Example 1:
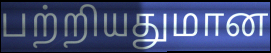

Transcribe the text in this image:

பற்றியதுமான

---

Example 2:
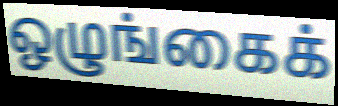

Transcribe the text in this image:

ஒழுங்கைக்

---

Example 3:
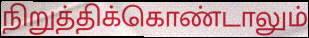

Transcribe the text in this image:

நிறுத்திக்கொண்டாலும்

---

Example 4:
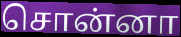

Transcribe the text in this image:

சொன்னா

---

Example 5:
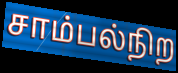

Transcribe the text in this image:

சாம்பல்நிற